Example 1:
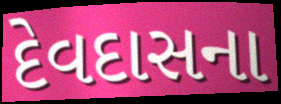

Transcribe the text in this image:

દેવદાસના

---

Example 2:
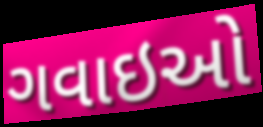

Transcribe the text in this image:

ગવાઇઓ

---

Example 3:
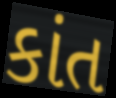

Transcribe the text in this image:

કાંત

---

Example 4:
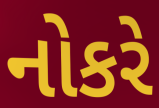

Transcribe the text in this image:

નોકરે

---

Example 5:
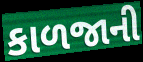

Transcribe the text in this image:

કાળજાની